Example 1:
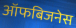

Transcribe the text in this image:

ऑफबिजनेस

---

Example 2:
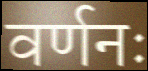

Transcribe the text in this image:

वर्णनः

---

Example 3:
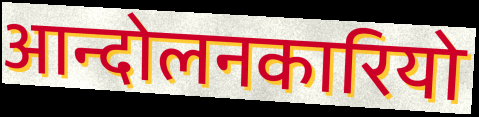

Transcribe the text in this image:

आन्दोलनकारियो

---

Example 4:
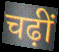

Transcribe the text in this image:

चढ़ीं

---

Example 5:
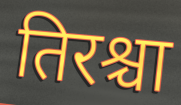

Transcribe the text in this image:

तिरश्चा